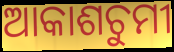
ଆକାଶଚୁମୀ